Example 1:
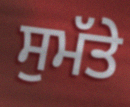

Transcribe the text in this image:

ਸੁਮੱਤੇ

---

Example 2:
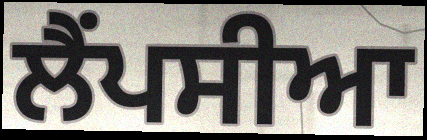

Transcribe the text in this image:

ਲੈਂਪਸੀਆ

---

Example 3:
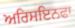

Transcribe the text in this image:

ਅਰਿਸਇਨਫਾ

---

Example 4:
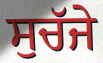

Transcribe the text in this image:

ਸੁਚੱਜੇ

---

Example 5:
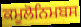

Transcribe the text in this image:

ਕਮੂਲੋਨਿਮਬਸ